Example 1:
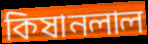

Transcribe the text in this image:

কিষানলাল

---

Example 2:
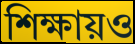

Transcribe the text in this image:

শিক্ষায়ও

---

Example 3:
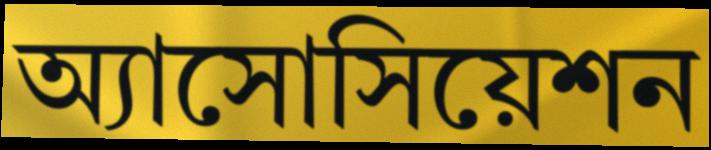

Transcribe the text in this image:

অ্যাসোসিয়েশন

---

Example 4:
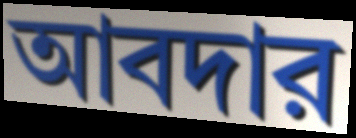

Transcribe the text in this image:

আবদার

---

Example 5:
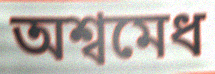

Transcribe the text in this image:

অশ্বমেধ